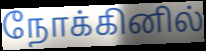
நோக்கினில்